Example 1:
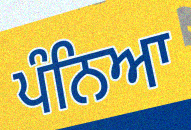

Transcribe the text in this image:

ਪੰਨਿਆ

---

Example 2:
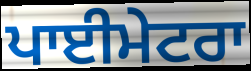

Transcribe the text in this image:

ਪਾਈਮੇਟਰਾ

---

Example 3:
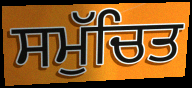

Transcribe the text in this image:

ਸਮੁੱਚਿਤ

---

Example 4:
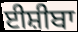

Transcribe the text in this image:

ਈਸ਼ੀਬਾ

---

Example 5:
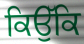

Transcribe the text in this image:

ਕਿਉੱਕਿ